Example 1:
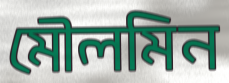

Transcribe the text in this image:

মৌলমিন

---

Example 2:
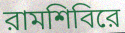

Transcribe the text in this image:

রামশিবিরে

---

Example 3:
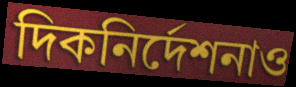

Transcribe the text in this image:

দিকনির্দেশনাও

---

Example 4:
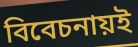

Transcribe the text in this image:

বিবেচনায়ই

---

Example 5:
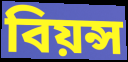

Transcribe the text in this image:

বিয়ন্স